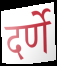
दर्णे